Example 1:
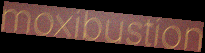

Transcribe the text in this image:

moxibustion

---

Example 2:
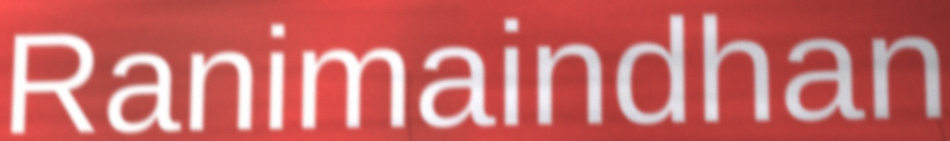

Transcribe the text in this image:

Ranimaindhan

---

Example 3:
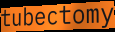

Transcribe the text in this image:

tubectomy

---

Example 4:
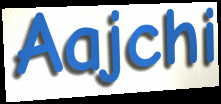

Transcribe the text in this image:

Aajchi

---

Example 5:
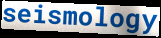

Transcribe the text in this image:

seismology